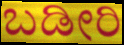
ಬಡೀರಿ